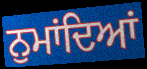
ਨੁਮਾਂਦਿਆਂ